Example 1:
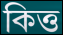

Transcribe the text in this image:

কিত্ত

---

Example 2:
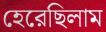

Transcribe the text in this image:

হেরেছিলাম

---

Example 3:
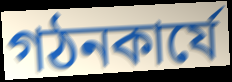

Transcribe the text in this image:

গঠনকার্যে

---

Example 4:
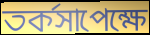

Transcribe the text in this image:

তর্কসাপেক্ষে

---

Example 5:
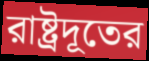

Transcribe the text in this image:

রাষ্ট্রদূতের